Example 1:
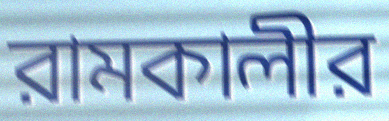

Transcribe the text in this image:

রামকালীর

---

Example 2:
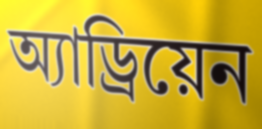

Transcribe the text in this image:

অ্যাড্রিয়েন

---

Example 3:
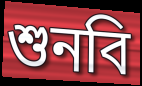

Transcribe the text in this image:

শুনবি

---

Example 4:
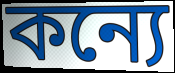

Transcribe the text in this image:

কন্যে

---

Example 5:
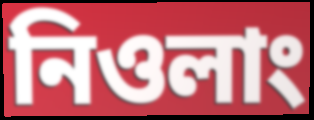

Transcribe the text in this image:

নিওলাং